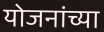
योजनांच्या